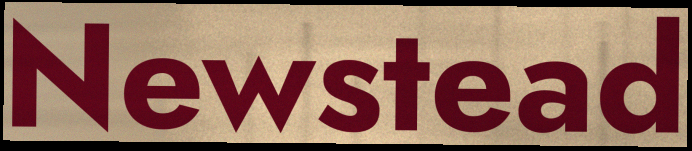
Newstead